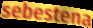
sebestena